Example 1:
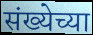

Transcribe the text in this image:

संख्येच्या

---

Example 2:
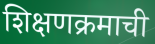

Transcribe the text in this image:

शिक्षणक्रमाची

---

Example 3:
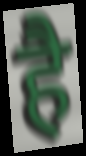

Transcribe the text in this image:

है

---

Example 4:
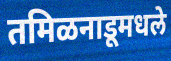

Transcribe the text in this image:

तमिळनाडूमधले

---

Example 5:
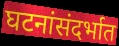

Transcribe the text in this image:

घटनांसंदर्भात